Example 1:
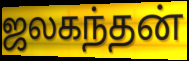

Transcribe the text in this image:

ஜலகந்தன்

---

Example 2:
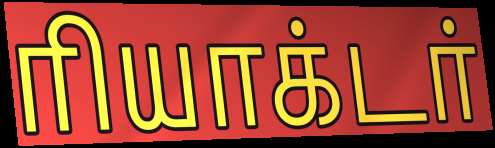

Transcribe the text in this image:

ரியாக்டர்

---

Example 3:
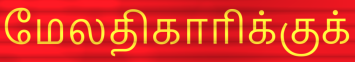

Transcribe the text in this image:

மேலதிகாரிக்குக்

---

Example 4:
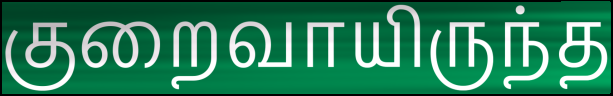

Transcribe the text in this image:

குறைவாயிருந்த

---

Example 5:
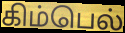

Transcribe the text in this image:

கிம்பெல்